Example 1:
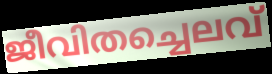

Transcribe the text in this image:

ജീവിതച്ചെലവ്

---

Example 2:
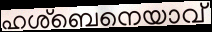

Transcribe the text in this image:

ഹശ്ബെനെയാവ്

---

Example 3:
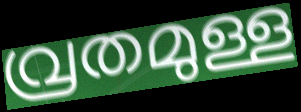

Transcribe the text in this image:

വ്രതമുള്ള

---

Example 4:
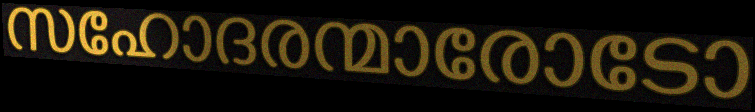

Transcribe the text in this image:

സഹോദരന്മാരോടോ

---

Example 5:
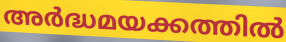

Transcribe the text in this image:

അർദ്ധമയക്കത്തിൽ